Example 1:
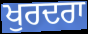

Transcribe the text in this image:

ਖੁਰਦਰਾ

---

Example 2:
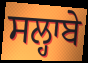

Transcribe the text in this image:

ਸਲ੍ਹਾਬੇ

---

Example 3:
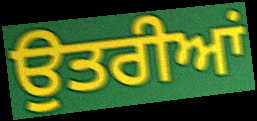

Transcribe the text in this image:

ਉਤਰੀਆਂ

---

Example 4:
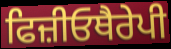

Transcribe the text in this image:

ਫਿਜ਼ੀਓਥੈਰੇਪੀ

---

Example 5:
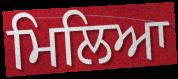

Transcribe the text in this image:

ਮਿਲਿਆ